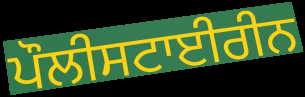
ਪੌਲੀਸਟਾਈਰੀਨ